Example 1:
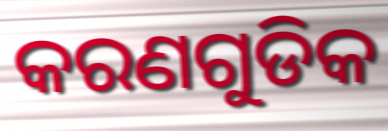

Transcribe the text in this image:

କରଣଗୁଡିକ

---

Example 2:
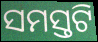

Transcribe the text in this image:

ସମସ୍ତଟି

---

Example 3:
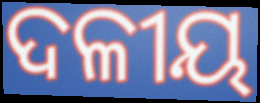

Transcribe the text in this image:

ଦଳୀୟ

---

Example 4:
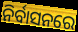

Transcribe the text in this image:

ନିର୍ବାସନରେ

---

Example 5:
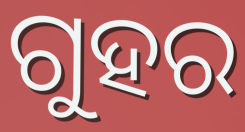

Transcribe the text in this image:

ଗୁହର